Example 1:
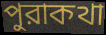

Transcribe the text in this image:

পুরাকথা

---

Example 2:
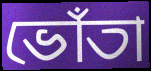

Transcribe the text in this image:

ভোঁতা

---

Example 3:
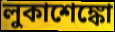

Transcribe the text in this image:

লুকাশেঙ্কো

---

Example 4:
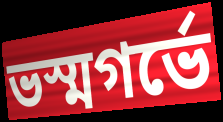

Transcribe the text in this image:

ভস্মগর্ভে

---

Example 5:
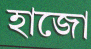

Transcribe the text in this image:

হাজো